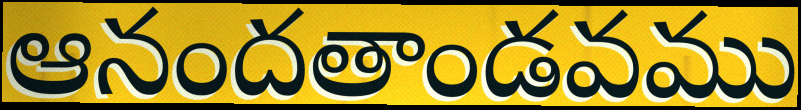
ఆనందతాండవము